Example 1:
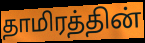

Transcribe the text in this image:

தாமிரத்தின்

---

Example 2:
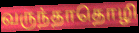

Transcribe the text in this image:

வருந்தாதொழி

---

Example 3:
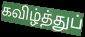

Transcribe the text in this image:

கவிழ்த்துப்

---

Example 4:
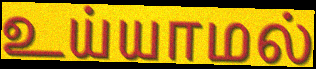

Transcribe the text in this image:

உய்யாமல்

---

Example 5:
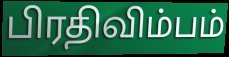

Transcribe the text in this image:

பிரதிவிம்பம்